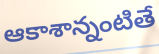
ఆకాశాన్నంటితే